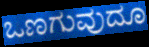
ಒಣಗುವುದೂ